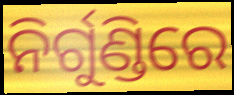
ନିର୍ଗୁଣ୍ଡିରେ